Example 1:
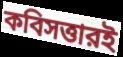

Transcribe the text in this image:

কবিসত্তারই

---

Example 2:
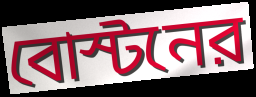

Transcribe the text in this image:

বোস্টনের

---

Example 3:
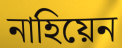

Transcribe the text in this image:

নাহিয়েন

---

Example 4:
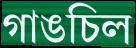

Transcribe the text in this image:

গাঙচিল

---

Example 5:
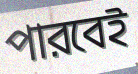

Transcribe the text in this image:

পারবেই